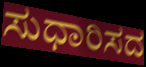
ಸುಧಾರಿಸದ